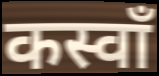
कस्वाँ